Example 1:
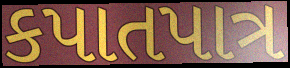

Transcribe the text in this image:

કપાતપાત્ર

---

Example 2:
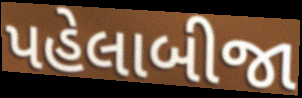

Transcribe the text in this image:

પહેલાબીજા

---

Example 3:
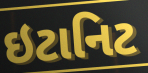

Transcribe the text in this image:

ઇટાનિટ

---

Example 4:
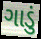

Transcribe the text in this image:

ગાડું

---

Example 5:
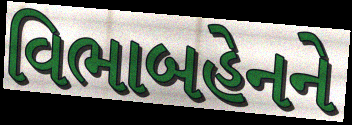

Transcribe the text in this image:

વિભાબહેનને